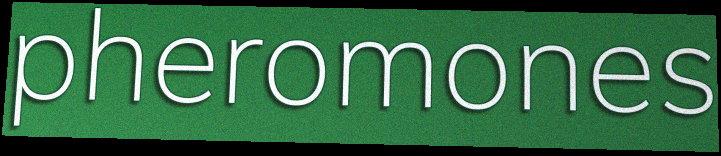
pheromones